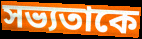
সভ্যতাকে